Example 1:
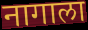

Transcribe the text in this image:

नागाला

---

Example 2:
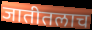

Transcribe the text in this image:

जातीतलाच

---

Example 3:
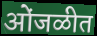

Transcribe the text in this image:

ओंजळीत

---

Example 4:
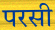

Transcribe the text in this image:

परसी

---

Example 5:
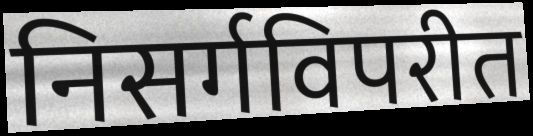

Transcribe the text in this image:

निसर्गविपरीत